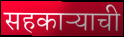
सहकाऱ्याची